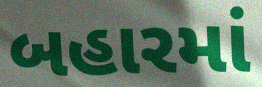
બહારમાં